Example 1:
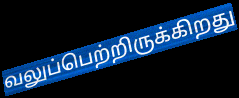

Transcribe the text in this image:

வலுப்பெற்றிருக்கிறது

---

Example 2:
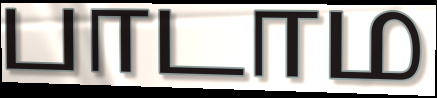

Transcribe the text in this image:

பாடாம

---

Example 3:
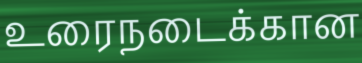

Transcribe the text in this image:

உரைநடைக்கான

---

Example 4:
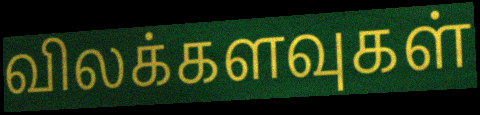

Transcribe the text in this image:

விலக்களவுகள்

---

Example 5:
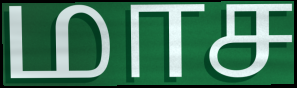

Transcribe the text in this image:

மாச